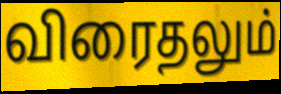
விரைதலும்